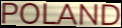
POLAND